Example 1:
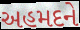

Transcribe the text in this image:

અહમદને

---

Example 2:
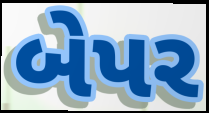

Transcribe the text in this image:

બેપર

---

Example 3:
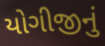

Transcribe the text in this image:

યોગીજીનું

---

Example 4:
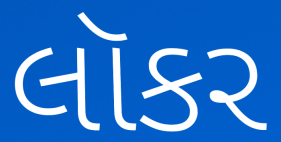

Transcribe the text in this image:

લૉકર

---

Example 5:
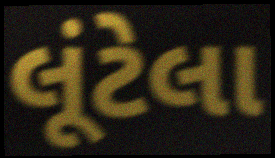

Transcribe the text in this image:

લૂંટેલા